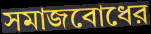
সমাজবোধের